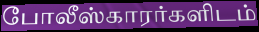
போலீஸ்காரர்களிடம்